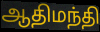
ஆதிமந்தி